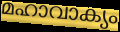
മഹാവാക്യം